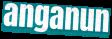
anganun